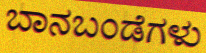
ಬಾನಬಂಡೆಗಳು